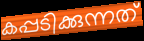
കപ്പടിക്കുന്നത്